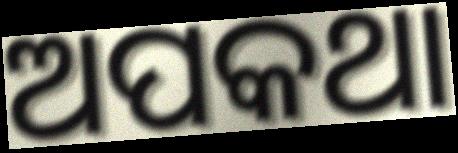
ଅପକଥା